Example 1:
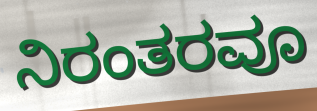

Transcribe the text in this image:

ನಿರಂತರವೂ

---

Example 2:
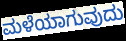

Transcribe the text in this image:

ಮಳೆಯಾಗುವುದು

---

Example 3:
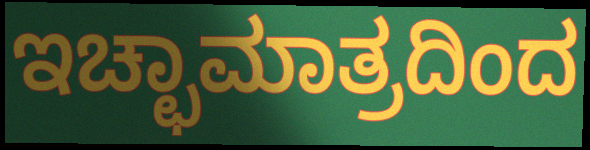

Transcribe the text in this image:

ಇಚ್ಛಾಮಾತ್ರದಿಂದ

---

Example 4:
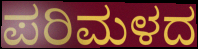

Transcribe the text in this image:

ಪರಿಮಳದ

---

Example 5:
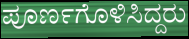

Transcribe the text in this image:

ಪೂರ್ಣಗೊಳಿಸಿದ್ದರು